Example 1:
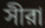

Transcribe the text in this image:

সীরা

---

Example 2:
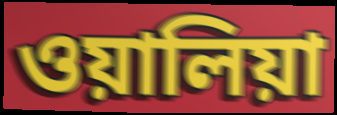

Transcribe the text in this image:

ওয়ালিয়া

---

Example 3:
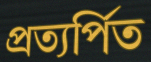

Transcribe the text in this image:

প্রত্যর্পিত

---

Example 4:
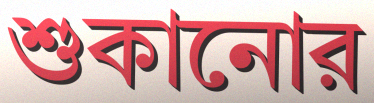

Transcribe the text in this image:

শুকানোর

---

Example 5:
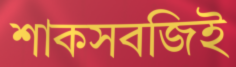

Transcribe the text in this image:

শাকসবজিই